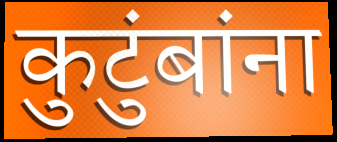
कुटुंबांना